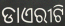
ଡାଏରୀଟି